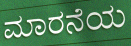
ಮಾರನೆಯ